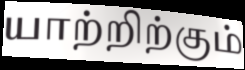
யாற்றிற்கும்